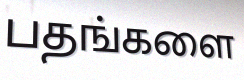
பதங்களை